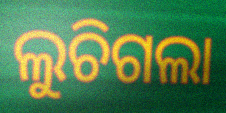
ଲୁଚିଗଲା